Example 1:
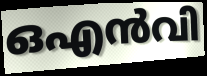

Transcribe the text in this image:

ഒഎൻവി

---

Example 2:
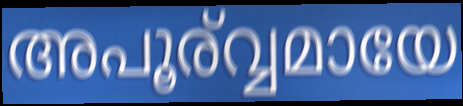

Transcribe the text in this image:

അപൂര്വ്വമായേ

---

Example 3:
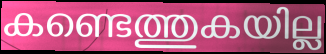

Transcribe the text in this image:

കണ്ടെത്തുകയില്ല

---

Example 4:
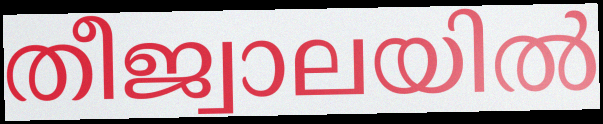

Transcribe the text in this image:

തീജ്വാലയിൽ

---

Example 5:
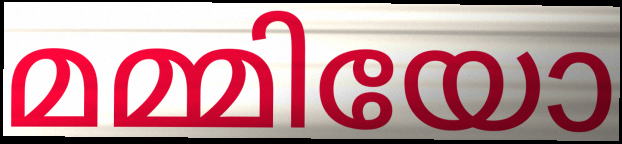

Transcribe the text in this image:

മമ്മിയോ